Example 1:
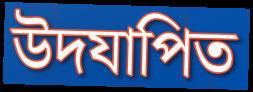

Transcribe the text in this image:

উদযাপিত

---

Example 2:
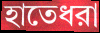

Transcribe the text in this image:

হাতেধরা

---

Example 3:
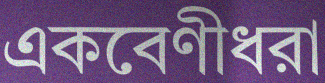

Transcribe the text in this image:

একবেণীধরা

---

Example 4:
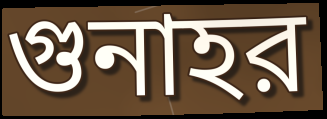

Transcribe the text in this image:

গুনাহর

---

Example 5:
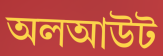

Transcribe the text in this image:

অলআউট